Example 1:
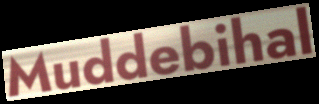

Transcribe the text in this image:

Muddebihal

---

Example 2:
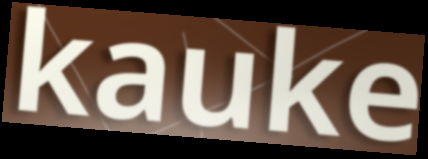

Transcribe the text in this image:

kauke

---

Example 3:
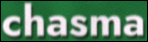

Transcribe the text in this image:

chasma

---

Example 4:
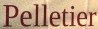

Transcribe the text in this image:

Pelletier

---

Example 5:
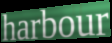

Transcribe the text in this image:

harbour